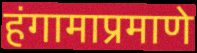
हंगामाप्रमाणे